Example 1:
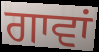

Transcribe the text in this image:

ਗਾਵਾਂ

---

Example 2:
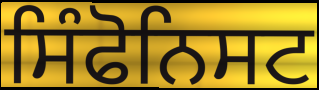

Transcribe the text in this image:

ਸਿੰਫੋਨਿਸਟ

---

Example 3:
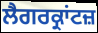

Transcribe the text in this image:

ਲੈਗਰਕ੍ਰਾਂਟਜ਼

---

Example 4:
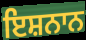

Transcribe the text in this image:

ਇਸ਼ਨਾਨ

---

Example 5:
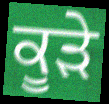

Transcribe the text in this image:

ਕੂੜੇ